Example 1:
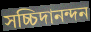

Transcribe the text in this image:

সচ্চিদানন্দন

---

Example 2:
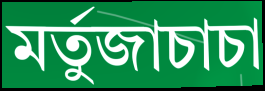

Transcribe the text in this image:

মর্তুজাচাচা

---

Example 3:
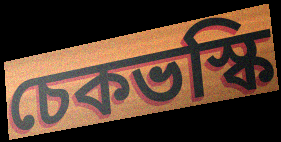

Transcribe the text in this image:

চেকভস্কি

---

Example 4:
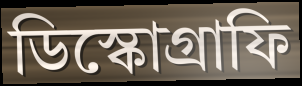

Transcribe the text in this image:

ডিস্কোগ্রাফি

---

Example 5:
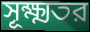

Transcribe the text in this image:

সূক্ষ্মতর